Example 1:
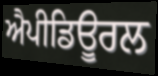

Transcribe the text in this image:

ਐਪੀਡਿਊਰਲ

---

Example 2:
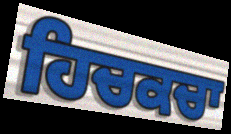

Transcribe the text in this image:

ਹਿਚਕਚਾ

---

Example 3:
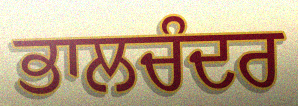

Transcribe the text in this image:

ਭਾਲਚੰਦਰ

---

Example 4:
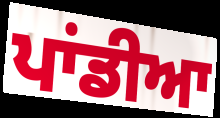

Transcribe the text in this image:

ਪਾਂਡੀਆ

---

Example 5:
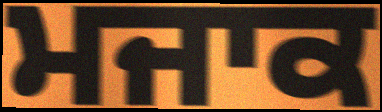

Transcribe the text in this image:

ਮਜਾਕ